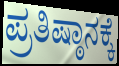
ಪ್ರತಿಷ್ಠಾನಕ್ಕೆ